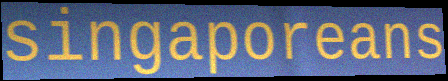
singaporeans